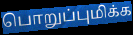
பொறுப்புமிக்க